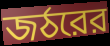
জঠরের